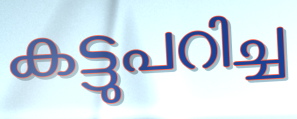
കട്ടുപറിച്ച